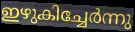
ഇഴുകിച്ചേർന്നു